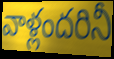
వాళ్లందరినీ